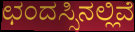
ಛಂದಸ್ಸಿನಲ್ಲಿವೆ